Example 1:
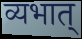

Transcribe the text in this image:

व्यभात्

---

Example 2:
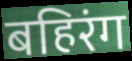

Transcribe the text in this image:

बहिरंग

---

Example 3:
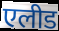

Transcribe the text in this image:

एलीड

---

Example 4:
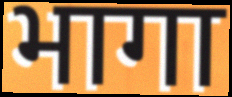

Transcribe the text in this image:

भागा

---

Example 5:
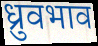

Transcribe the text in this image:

ध्रुवभाव